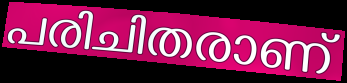
പരിചിതരാണ്